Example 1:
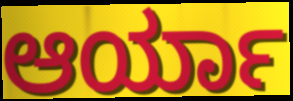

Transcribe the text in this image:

ಆರ್ಯಾ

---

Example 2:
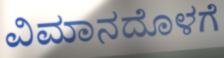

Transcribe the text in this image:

ವಿಮಾನದೊಳಗೆ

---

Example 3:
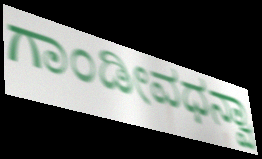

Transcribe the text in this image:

ಗಾಂಡೀವಧನ್ವಾ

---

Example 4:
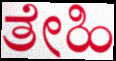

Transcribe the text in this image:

ತೇಹಿ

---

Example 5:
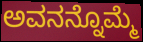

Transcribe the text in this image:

ಅವನನ್ನೊಮ್ಮೆ